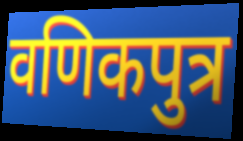
वणिकपुत्र